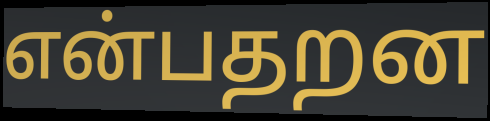
என்பதறன